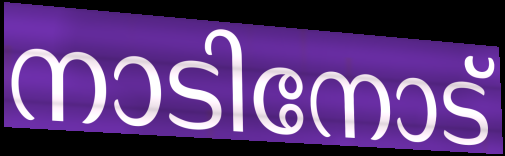
നാടിനോട്